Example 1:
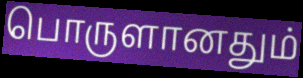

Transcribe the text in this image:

பொருளானதும்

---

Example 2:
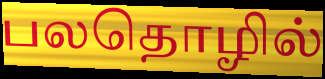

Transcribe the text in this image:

பலதொழில்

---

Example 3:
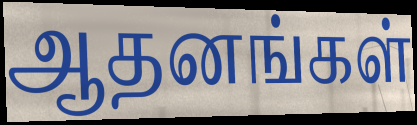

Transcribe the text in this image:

ஆதனங்கள்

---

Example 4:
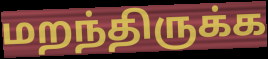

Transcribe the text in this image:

மறந்திருக்க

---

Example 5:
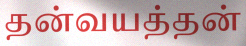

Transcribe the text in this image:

தன்வயத்தன்